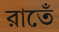
রাতেঁ